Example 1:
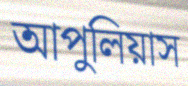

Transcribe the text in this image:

আপুলিয়াস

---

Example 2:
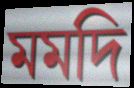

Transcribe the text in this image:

মমদি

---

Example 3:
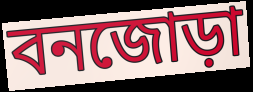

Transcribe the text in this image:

বনজোড়া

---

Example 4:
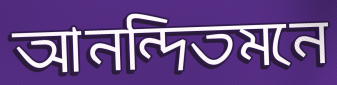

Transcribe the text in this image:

আনন্দিতমনে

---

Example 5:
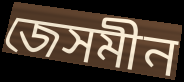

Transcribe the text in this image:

জেসমীন